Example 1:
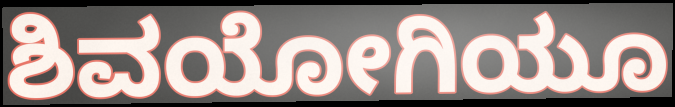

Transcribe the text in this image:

ಶಿವಯೋಗಿಯೂ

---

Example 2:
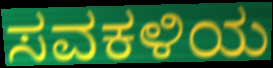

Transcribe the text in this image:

ಸವಕಳಿಯ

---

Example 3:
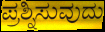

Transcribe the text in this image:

ಪ್ರಶ್ನಿಸುವುದು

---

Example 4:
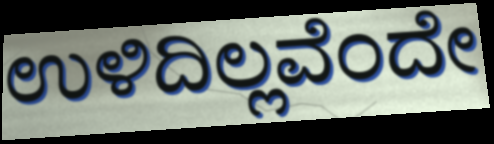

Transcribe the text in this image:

ಉಳಿದಿಲ್ಲವೆಂದೇ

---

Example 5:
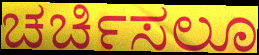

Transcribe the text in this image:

ಚರ್ಚಿಸಲೂ